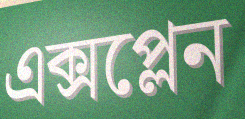
এক্সপ্লেন